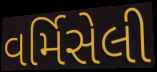
વર્મિસેલી